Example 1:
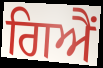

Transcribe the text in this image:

ਗਿਐਂ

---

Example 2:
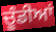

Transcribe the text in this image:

ਚੂੰਡੀਆਂ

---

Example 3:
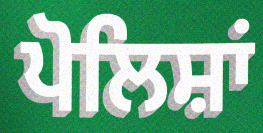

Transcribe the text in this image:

ਪੋਲਿਸ਼ਾਂ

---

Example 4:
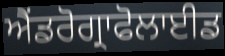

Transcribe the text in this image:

ਐਂਡਰੋਗ੍ਰਾਫੋਲਾਈਡ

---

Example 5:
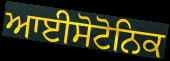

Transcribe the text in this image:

ਆਈਸੋਟੋਨਿਕ